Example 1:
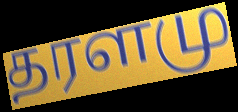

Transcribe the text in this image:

தரளமு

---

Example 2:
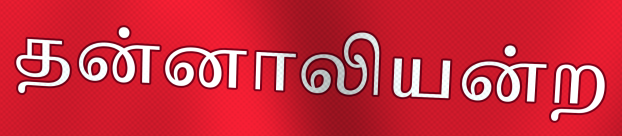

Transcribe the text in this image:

தன்னாலியன்ற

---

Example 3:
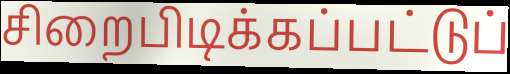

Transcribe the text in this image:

சிறைபிடிக்கப்பட்டுப்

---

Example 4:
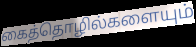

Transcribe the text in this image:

கைத்தொழில்களையும்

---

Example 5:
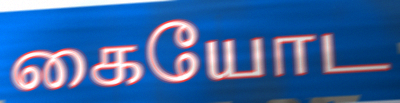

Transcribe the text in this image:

கையோட